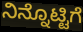
ನಿನ್ನೊಟ್ಟಿಗೆ